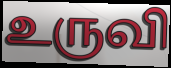
உருவி